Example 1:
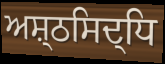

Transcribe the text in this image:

ਅਸ਼੍ਠਸਿਦ੍ਧਿ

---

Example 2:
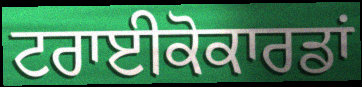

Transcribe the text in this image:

ਟਰਾਈਕੋਕਾਰਡਾਂ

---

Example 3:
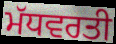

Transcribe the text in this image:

ਮੱਧਵਰਤੀ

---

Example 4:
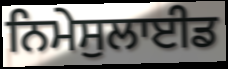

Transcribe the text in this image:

ਨਿਮੇਸੁਲਾਈਡ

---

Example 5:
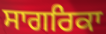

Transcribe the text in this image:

ਸਾਗਰਿਕਾ